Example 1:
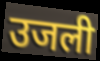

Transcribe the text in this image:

उजली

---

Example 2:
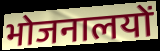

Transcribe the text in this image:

भोजनालयों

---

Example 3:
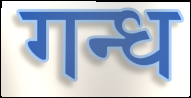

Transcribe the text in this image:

गन्ध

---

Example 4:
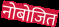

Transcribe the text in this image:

नोबोजित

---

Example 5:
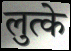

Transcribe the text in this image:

लुत्के